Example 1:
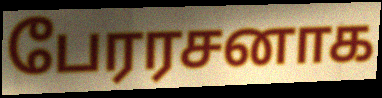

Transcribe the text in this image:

பேரரசனாக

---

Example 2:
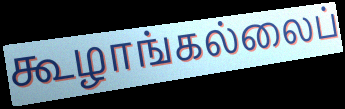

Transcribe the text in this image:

கூழாங்கல்லைப்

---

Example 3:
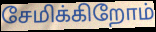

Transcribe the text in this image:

சேமிக்கிறோம்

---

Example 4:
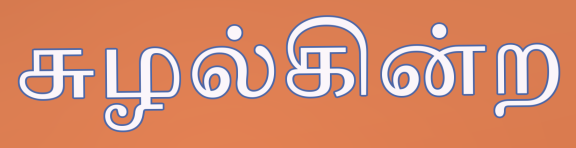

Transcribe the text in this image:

சுழல்கின்ற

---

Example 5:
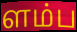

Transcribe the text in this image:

ளம்ப